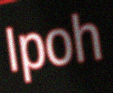
Ipoh